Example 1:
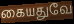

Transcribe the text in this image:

கையதுவே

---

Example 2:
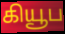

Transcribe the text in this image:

கியூப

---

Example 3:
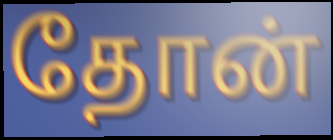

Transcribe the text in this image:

தோன்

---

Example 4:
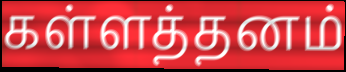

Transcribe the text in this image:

கள்ளத்தனம்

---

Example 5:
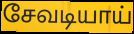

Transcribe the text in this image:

சேவடியாய்